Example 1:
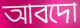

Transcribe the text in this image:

আবদো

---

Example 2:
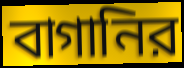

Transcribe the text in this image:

বাগানির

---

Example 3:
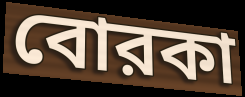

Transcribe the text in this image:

বোরকা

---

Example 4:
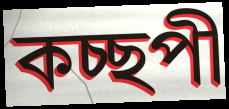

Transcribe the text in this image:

কচ্ছপী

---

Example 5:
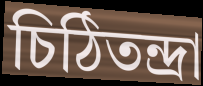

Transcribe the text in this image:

চিঠিতন্দ্রা